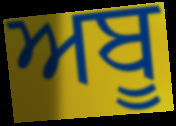
ਅਬੂ